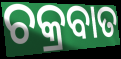
ଚକ୍ରବାତ